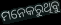
ମନେକରୁଥିବୁ